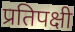
प्रतिपक्षी